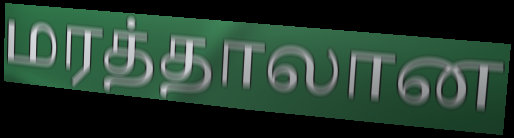
மரத்தாலான